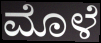
ಮೊಳೆ